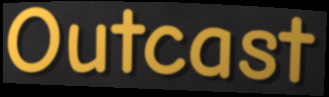
Outcast